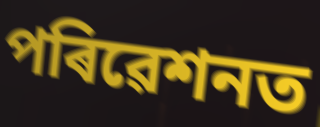
পৰিৱেশনত